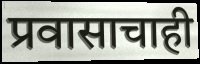
प्रवासाचाही